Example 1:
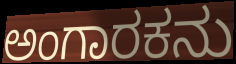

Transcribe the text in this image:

ಅಂಗಾರಕನು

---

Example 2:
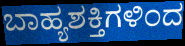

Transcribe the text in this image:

ಬಾಹ್ಯಶಕ್ತಿಗಳಿಂದ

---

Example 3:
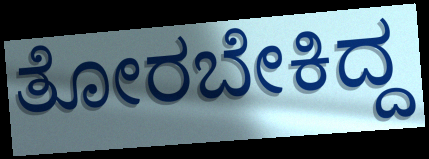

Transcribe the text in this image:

ತೋರಬೇಕಿದ್ದ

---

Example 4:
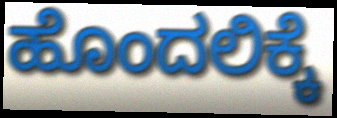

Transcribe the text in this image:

ಹೊಂದಲಿಕ್ಕೆ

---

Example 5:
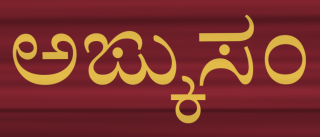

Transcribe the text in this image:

ಅಙ್ಕುಸಂ